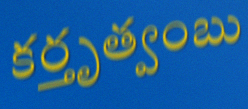
కర్తృత్వంబు